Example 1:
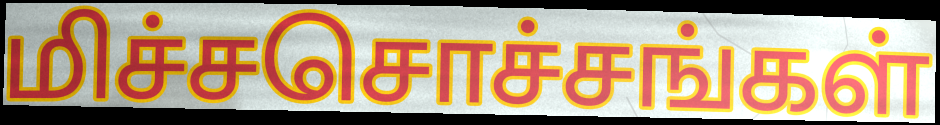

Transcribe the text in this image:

மிச்சசொச்சங்கள்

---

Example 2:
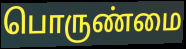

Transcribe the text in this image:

பொருண்மை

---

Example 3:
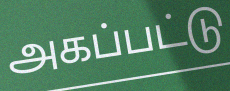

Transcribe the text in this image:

அகப்பட்டு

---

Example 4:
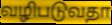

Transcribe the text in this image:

வழிபடுவதா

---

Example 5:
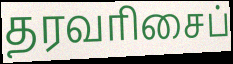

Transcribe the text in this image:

தரவரிசைப்